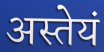
अस्तेयं